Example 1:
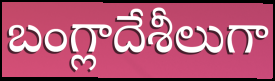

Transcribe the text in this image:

బంగ్లాదేశీలుగా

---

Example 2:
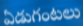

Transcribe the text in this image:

ఏడుగంటలు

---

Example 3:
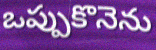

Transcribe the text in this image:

ఒప్పుకొనెను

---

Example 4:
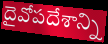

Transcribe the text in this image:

దైవోపదేశాన్ని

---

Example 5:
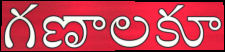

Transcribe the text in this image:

గణాలకూ